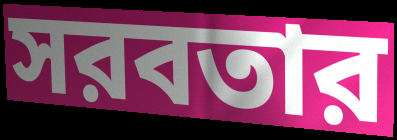
সরবতার